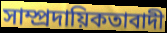
সাম্প্রদায়িকতাবাদী